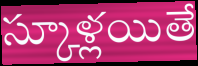
స్కూళ్లయితే